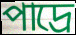
পাদ্রে